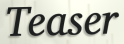
Teaser